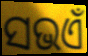
ସଭଏଁ